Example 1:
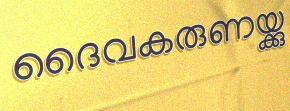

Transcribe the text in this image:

ദൈവകരുണയ്ക്കു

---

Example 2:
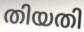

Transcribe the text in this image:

തിയതി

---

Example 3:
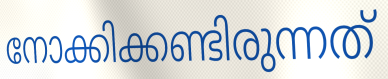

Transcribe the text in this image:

നോക്കിക്കണ്ടിരുന്നത്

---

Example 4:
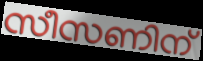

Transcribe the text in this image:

സീസണിന്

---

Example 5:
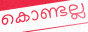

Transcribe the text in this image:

കൊണ്ടല്ല